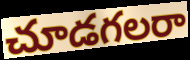
చూడగలరా